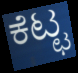
ಕೆಟ್ಟ